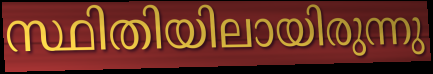
സ്ഥിതിയിലായിരുന്നു